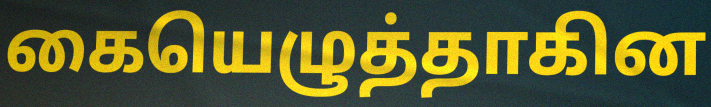
கையெழுத்தாகின